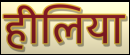
हीलिया